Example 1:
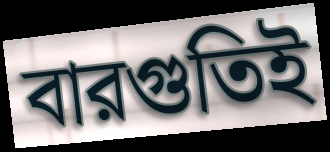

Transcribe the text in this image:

বারগুতিই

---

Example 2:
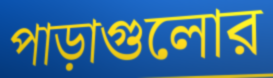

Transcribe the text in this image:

পাড়াগুলোর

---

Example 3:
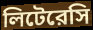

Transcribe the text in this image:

লিটেরেসি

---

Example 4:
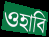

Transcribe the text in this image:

ওহাবি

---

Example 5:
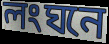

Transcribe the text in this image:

লংঘনে